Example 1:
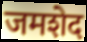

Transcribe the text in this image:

जमशेद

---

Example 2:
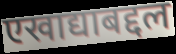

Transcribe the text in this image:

एखाद्याबद्दल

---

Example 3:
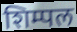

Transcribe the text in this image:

शिम्पल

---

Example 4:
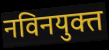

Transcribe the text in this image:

नविनयुक्त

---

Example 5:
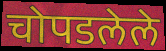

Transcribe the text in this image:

चोपडलेले